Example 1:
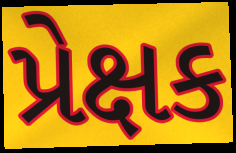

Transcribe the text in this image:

પ્રેક્ષક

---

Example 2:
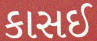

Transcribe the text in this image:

કાસઈ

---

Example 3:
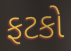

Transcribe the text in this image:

ફટકો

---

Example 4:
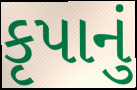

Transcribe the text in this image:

કૃપાનું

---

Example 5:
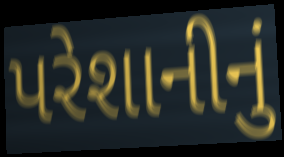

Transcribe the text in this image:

પરેશાનીનું